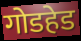
गोडहेड